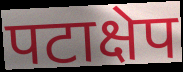
पटाक्षेप